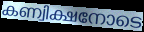
കണ്വിക്ഷനോടെ